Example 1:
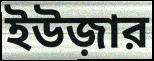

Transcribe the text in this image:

ইউজ়ার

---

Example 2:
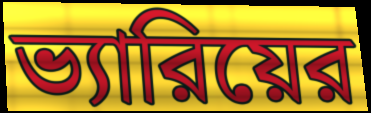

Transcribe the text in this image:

ভ্যারিয়ের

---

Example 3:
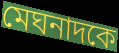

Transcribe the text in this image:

মেঘনাদকে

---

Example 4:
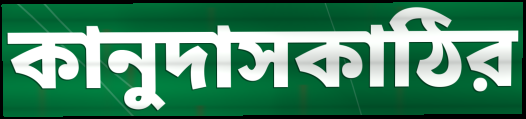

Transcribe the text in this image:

কানুদাসকাঠির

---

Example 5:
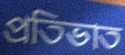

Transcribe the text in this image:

প্রতিভাত